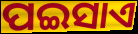
ପଇସାଏ